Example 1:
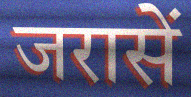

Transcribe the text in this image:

जरासें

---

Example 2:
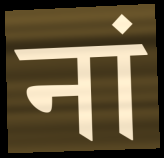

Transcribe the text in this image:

नां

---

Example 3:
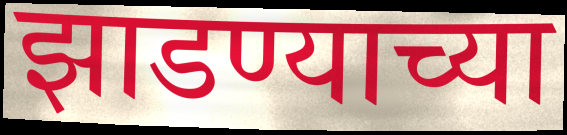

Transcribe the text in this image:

झाडण्याच्या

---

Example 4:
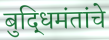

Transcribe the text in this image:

बुद्धिमंतांचे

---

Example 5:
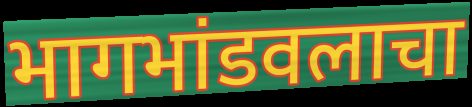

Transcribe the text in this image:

भागभांडवलाचा